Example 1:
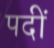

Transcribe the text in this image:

पदीं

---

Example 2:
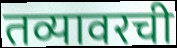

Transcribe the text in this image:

तव्यावरची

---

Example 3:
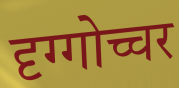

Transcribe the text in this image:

दृग्गोच्चर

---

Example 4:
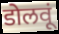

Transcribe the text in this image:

डोलवूं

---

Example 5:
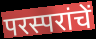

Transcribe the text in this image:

परस्परांचें